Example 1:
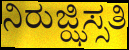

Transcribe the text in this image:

ನಿರುಜ್ಝಿಸ್ಸತಿ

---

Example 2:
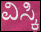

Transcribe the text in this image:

ವಿಸ್ಕಿ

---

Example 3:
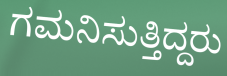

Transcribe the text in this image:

ಗಮನಿಸುತ್ತಿದ್ದರು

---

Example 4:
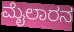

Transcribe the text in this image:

ಮೈಲಾರನ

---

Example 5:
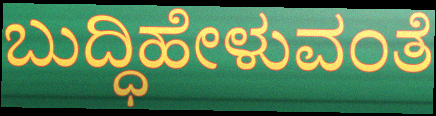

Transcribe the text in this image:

ಬುದ್ಧಿಹೇಳುವಂತೆ